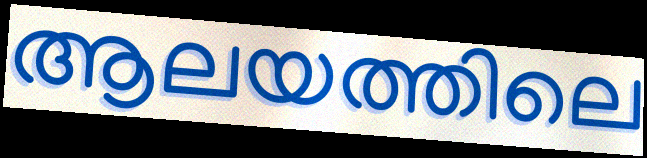
ആലയത്തിലെ